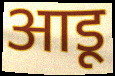
आडू